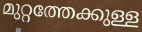
മുറ്റത്തേക്കുള്ള